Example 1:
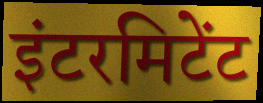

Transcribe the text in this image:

इंटरमिटेंट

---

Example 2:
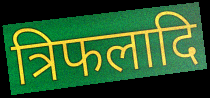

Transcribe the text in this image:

त्रिफलादि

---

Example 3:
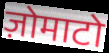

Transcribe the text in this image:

ज़ोमाटो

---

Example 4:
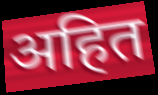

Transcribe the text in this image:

अहित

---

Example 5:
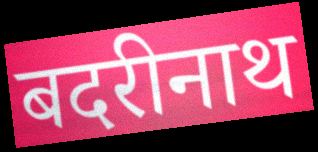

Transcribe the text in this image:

बदरीनाथ